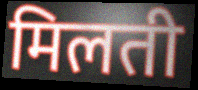
मिलती